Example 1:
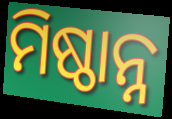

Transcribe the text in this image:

ମିଷ୍ଠାନ୍ନ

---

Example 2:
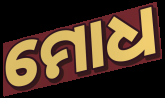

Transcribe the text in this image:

ମୋଧ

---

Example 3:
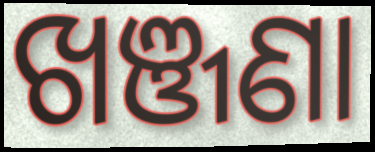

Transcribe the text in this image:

ଖଞ୍ଜଣା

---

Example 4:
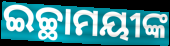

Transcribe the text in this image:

ଇଚ୍ଛାମୟୀଙ୍କ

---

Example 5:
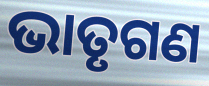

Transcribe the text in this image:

ଭାତୃଗଣ